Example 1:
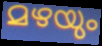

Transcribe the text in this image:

മഴയും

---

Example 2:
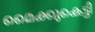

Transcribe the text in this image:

മൈക്കുകെട്ടി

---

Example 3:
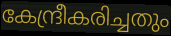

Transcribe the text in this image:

കേന്ദ്രീകരിച്ചതും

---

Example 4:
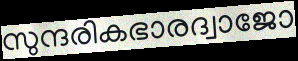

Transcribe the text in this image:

സുന്ദരികഭാരദ്വാജോ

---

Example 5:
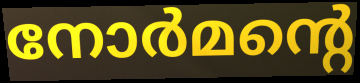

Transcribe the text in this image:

നോർമന്റെ